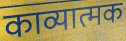
काव्यात्मक